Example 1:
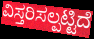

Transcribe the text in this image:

ವಿಸ್ತರಿಸಲ್ಪಟ್ಟಿದೆ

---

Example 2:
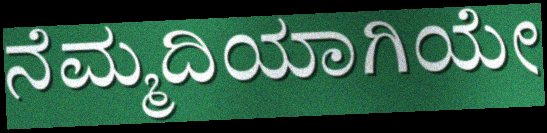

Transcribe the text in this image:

ನೆಮ್ಮದಿಯಾಗಿಯೇ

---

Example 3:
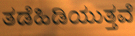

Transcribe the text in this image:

ತಡೆಹಿಡಿಯುತ್ತವೆ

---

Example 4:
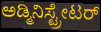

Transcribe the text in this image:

ಅಡ್ಮಿನಿಸ್ಟ್ರೇಟರ್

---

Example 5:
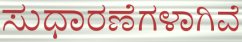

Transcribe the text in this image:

ಸುಧಾರಣೆಗಳಾಗಿವೆ